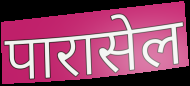
पारासेल